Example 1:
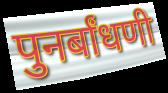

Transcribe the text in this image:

पुनर्बांधणी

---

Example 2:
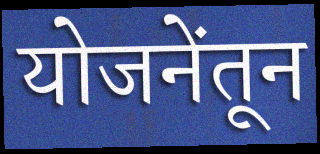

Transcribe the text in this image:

योजनेंतून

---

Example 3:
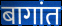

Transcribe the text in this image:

बागांत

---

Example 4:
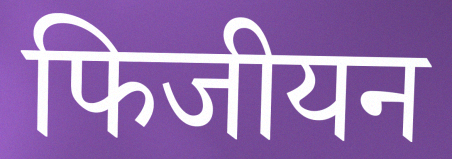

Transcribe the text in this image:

फिजीयन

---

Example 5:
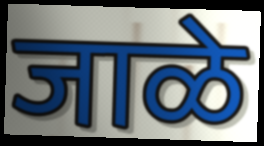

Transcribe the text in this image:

जाळे